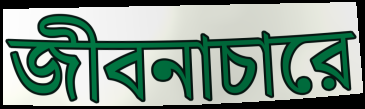
জীবনাচারে